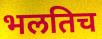
भलतिच